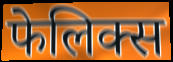
फेलिक्स